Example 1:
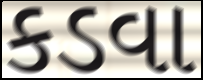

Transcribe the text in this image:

કડવા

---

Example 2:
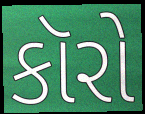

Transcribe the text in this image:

કૉરો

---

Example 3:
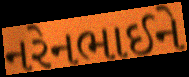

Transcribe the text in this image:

નરેનભાઈને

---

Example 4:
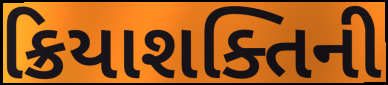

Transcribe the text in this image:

ક્રિયાશક્તિની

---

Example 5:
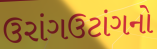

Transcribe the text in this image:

ઉરાંગઉટાંગનો